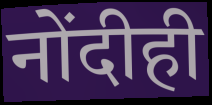
नोंदीही